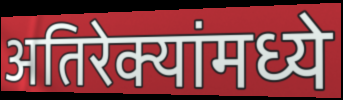
अतिरेक्यांमध्ये